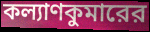
কল্যাণকুমারের